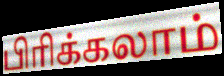
பிரிக்கலாம்